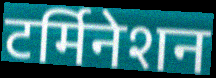
टर्मिनेशन